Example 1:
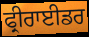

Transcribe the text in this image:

ਫ੍ਰੀਰਾਈਡਰ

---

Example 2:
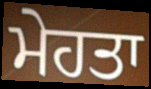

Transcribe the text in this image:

ਮੇਹਤਾ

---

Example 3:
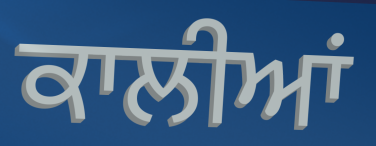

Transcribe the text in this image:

ਕਾਲੀਆਂ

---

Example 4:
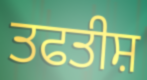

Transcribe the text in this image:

ਤਫਤੀਸ਼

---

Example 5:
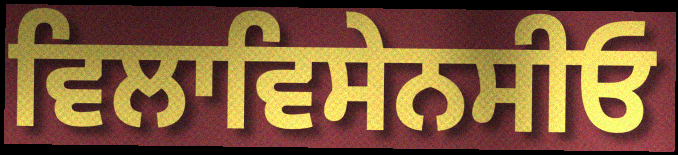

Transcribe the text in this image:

ਵਿਲਾਵਿਸੇਨਸੀਓ